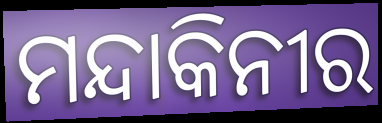
ମନ୍ଦାକିନୀର